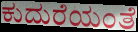
ಕುದುರೆಯಂತೆ